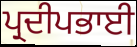
ਪ੍ਰਦੀਪਭਾਈ